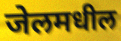
जेलमधील